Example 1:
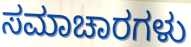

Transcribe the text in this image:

ಸಮಾಚಾರಗಳು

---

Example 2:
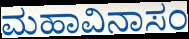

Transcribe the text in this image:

ಮಹಾವಿನಾಸಂ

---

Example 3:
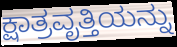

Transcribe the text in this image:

ಕ್ಷಾತ್ರವೃತ್ತಿಯನ್ನು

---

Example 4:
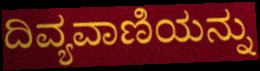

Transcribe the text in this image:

ದಿವ್ಯವಾಣಿಯನ್ನು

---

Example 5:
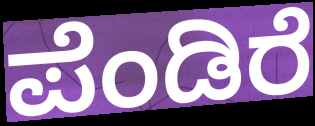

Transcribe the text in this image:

ಪೆಂಡಿರೆ